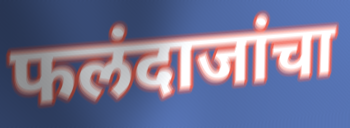
फलंदाजांचा